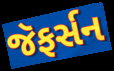
જૅફર્સન